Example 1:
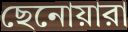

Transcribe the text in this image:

ছেনোয়ারা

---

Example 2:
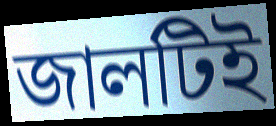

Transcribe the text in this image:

জালটিই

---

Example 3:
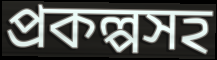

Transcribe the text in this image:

প্রকল্পসহ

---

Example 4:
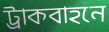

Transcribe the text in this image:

ট্রাকবাহনে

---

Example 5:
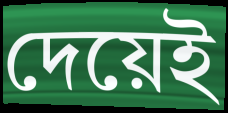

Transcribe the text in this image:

দেয়েই